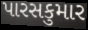
પારસકુમાર